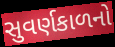
સુવર્ણકાળનો